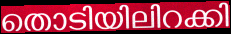
തൊടിയിലിറക്കി